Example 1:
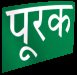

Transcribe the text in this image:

पूरक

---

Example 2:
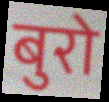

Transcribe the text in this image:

बुरो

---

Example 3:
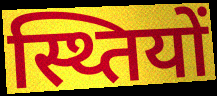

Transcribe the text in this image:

स्थ्तियों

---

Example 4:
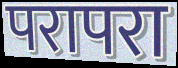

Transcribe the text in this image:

परापरा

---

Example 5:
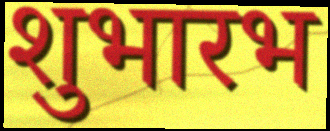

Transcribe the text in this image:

शुभारभ